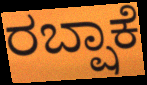
ರಬ್ಷಾಕೆ